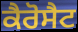
ਕੈਰੋਸੈਟ